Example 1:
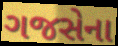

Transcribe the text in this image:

ગજસેના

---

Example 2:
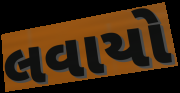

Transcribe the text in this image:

લવાયો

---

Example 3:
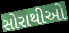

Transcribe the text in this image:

સોરાથીઓ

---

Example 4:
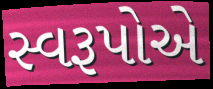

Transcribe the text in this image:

સ્વરૂપોએ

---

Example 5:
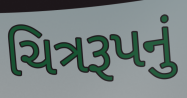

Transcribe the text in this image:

ચિત્રરૂપનું